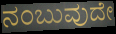
ನಂಬುವುದೇ